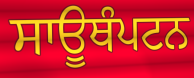
ਸਾਊਥੰਪਟਨ